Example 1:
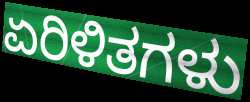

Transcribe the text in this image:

ಏರಿಳಿತಗಳು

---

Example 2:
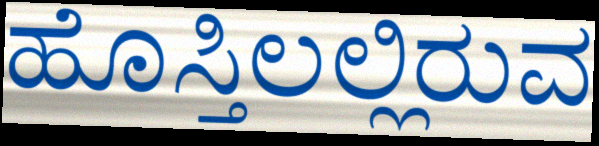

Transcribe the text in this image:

ಹೊಸ್ತಿಲಲ್ಲಿರುವ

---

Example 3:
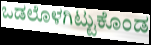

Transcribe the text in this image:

ಒಡಲೊಳಗಿಟ್ಟುಕೊಂಡ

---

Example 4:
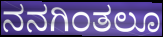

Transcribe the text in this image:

ನನಗಿಂತಲೂ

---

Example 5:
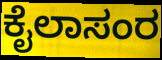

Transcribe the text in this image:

ಕೈಲಾಸಂರ